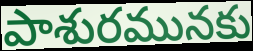
పాశురమునకు